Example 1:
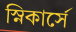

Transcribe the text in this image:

স্নিকার্সে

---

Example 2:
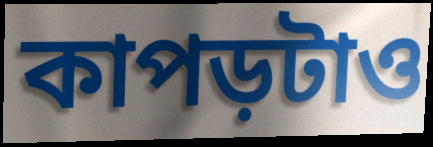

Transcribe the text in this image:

কাপড়টাও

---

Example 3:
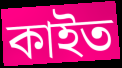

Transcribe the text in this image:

কাইত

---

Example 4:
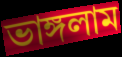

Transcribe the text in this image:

ভাঙ্গলাম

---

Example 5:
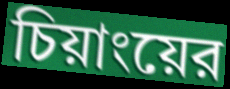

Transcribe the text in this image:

চিয়াংয়ের